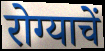
रोग्याचें